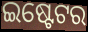
ଇଷ୍ଟେଟର